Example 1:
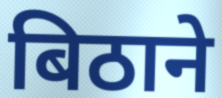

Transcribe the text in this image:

बिठाने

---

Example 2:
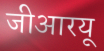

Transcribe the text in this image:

जीआरयू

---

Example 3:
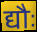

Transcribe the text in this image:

द्यौः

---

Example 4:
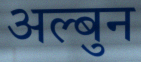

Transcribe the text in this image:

अल्बुन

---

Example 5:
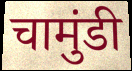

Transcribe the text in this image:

चामुंडी